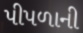
પીપળાની